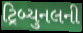
ટ્રિબ્યુનલની